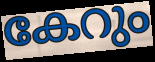
കേറും